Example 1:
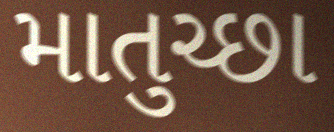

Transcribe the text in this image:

માતુચ્છા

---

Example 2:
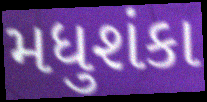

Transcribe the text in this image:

મધુશંકા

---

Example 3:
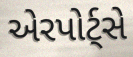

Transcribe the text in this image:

એરપોર્ટ્સે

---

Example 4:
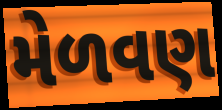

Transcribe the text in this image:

મેળવણ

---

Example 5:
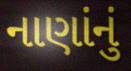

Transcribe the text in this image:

નાણાંનું